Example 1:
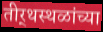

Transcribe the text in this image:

तीर्थस्थळांच्या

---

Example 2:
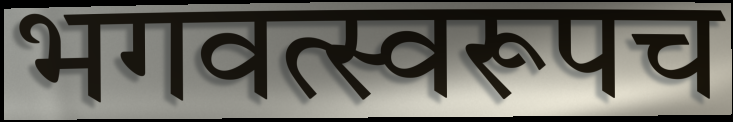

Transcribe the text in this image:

भगवत्स्वरूपच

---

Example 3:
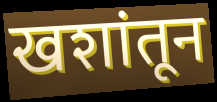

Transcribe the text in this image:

खशांतून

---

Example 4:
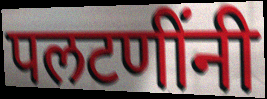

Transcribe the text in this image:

पलटणींनी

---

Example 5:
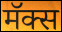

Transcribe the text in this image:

मॅक्स